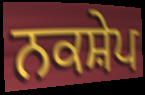
ਨਕਸ਼ੇਪ